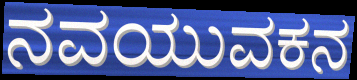
ನವಯುವಕನ